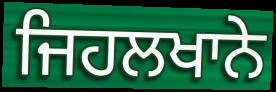
ਜਿਹਲਖਾਨੇ